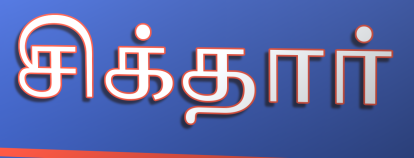
சிக்தார்